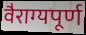
वैराग्यपूर्ण